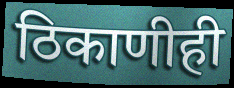
ठिकाणीही